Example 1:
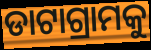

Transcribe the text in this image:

ଡାଟାଗ୍ରାମକୁ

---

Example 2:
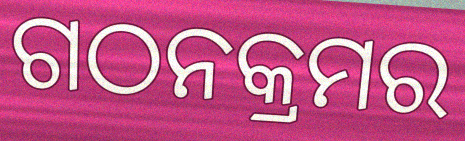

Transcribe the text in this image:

ଗଠନକ୍ରମର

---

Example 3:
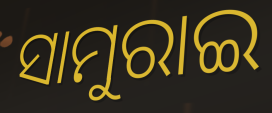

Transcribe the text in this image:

ସାମୁରାଇ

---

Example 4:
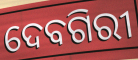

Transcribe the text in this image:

ଦେବଗିରୀ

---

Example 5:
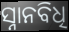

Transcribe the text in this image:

ସ୍ନାନବିଧି